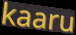
kaaru